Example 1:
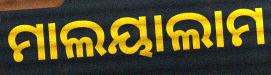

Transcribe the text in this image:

ମାଲୟାଲାମ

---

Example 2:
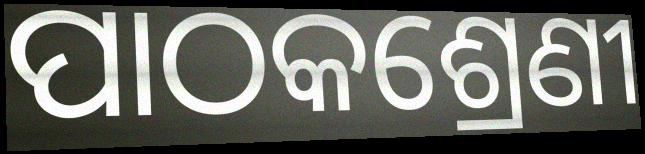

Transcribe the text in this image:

ପାଠକଶ୍ରେଣୀ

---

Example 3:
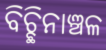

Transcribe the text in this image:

ବିଚ୍ଛିନାଞ୍ଚଳ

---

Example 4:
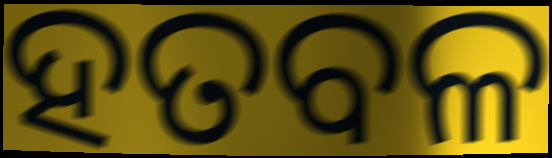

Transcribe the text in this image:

ହତବଳ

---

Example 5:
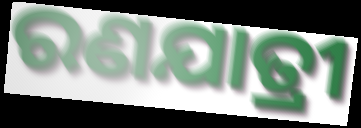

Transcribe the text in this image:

ରଣଯାତ୍ରୀ